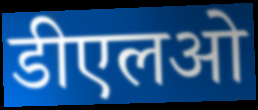
डीएलओ